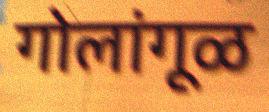
गोलांगूळ